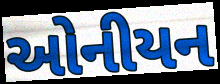
ઓનીયન